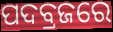
ପଦବ୍ରଜରେ